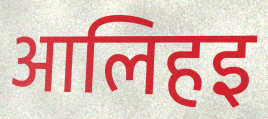
आलिहइ